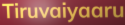
Tiruvaiyaaru